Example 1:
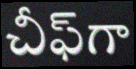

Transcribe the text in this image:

చీఫ్‌గా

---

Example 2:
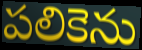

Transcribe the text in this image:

పలికెను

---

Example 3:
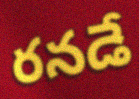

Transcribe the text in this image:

రనడే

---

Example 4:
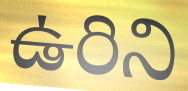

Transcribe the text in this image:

ఉరిని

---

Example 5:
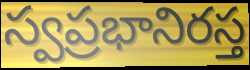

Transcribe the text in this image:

స్వప్రభానిరస్త